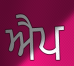
ਐਪ